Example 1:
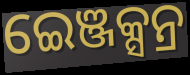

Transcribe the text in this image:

ଇେଞ୍ଜକ୍ସନ୍ର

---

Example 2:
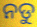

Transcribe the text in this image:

ନଡୁ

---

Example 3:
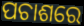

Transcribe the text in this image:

ପଚାଶରେ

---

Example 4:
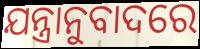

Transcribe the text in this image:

ଯନ୍ତ୍ରାନୁବାଦରେ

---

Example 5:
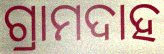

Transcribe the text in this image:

ଗ୍ରାମଦାହ